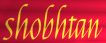
shobhtan